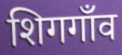
शिगगाँव